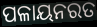
ପଳାୟନରତ